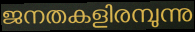
ജനതകളിരമ്പുന്നു